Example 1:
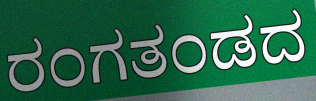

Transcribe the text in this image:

ರಂಗತಂಡದ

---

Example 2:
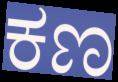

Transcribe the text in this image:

ಕಣ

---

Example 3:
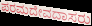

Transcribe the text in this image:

ಪರಮದೇವದಾಸರು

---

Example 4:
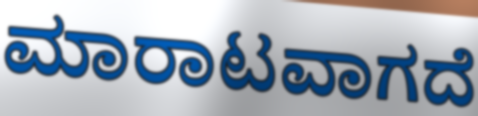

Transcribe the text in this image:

ಮಾರಾಟವಾಗದೆ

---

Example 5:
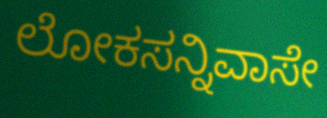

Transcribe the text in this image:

ಲೋಕಸನ್ನಿವಾಸೇ